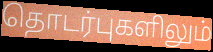
தொடர்புகளிலும்